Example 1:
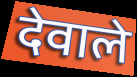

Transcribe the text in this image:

देवाले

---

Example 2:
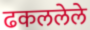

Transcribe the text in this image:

ढकललेले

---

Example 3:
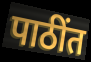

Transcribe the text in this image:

पाठींत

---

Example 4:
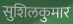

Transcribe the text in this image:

सुशिलकुमार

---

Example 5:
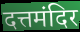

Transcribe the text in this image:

दत्तमंदिर